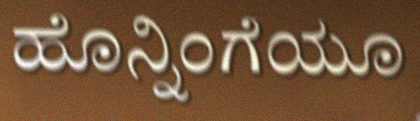
ಹೊನ್ನಿಂಗೆಯೂ